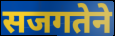
सजगतेने